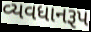
વ્યવધાનરૂપ